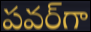
పవర్‌గా